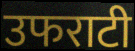
उफराटी